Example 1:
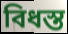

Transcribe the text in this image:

বিধস্ত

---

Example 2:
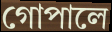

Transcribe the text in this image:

গোপালে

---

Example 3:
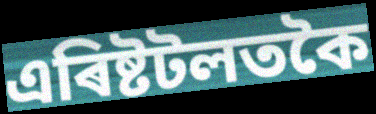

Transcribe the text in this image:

এৰিষ্টটলতকৈ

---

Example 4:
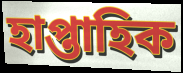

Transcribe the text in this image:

হাপ্তাহিক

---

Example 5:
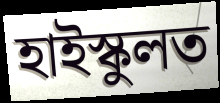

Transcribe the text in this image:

হাইস্কুলত